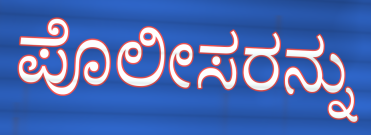
ಪೊಲೀಸರನ್ನು